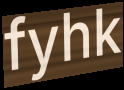
fyhk